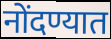
नोंदण्यात